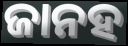
ଜାନହ